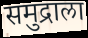
समुद्राला